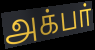
அக்பர்